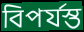
বিপৰ্যস্ত